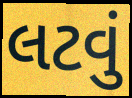
લટવું